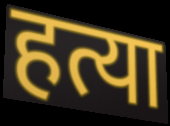
हत्या